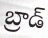
బ్రాడ్